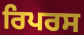
ਰਿਪਰਸ